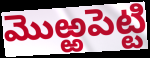
మొఱ్ఱపెట్టి